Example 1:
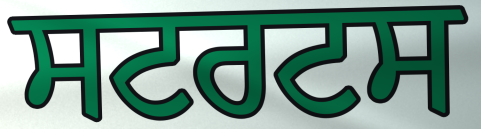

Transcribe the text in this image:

ਸਟਰਟਸ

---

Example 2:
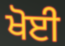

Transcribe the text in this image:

ਖੋਈ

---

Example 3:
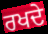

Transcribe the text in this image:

ਰਖਦੇ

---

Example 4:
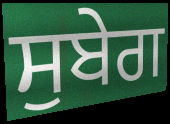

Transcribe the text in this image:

ਸੁਬੇਗ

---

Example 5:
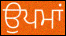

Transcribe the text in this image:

ਉਪਮਾਂ